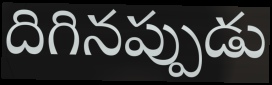
దిగినప్పుడు